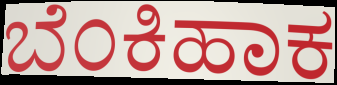
ಬೆಂಕಿಹಾಕ